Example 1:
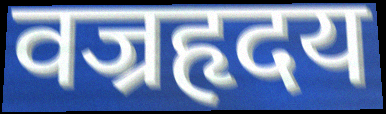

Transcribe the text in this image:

वज्रहृदय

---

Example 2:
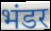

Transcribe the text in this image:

भंडर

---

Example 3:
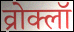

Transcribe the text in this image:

व्रोक्लॉ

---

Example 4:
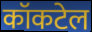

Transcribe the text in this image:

कॉकटेल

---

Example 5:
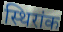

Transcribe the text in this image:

स्थिरांक